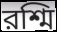
রশ্মি